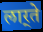
लार्ते